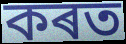
কৰত